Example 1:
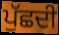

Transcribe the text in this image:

ਪੁੱਛਦੀ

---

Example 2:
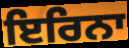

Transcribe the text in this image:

ਇਰਿਨਾ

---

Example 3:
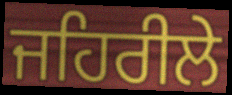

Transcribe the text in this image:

ਜਹਿਰੀਲੇ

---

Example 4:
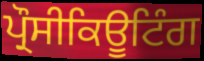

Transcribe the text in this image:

ਪ੍ਰੌਸੀਕਿਊਟਿੰਗ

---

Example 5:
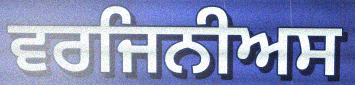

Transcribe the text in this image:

ਵਰਜਿਨੀਅਸ